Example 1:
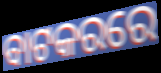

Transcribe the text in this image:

ବାଟକରରେ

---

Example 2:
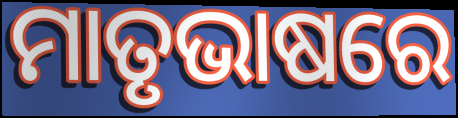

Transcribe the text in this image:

ମାତୃଭାଷରେ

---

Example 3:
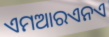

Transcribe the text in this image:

ଏମଆରଏନଏ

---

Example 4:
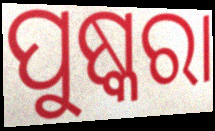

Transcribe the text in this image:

ପୁଷ୍କରା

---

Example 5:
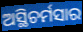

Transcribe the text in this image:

ଅସ୍ଥିଚର୍ମସାର